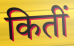
कितीं